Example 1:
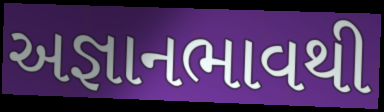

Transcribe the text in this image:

અજ્ઞાનભાવથી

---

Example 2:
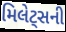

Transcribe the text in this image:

મિલેટ્સની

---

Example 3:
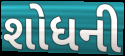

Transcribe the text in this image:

શોધની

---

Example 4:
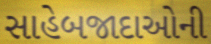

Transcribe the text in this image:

સાહેબજાદાઓની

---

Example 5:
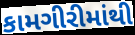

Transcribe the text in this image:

કામગીરીમાંથી